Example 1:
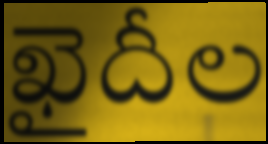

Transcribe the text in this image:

ఖైదీల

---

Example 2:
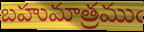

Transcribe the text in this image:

బహుమాత్రముఁ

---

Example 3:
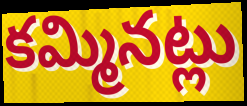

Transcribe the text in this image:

కమ్మినట్లు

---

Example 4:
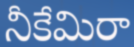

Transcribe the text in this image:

నీకేమిరా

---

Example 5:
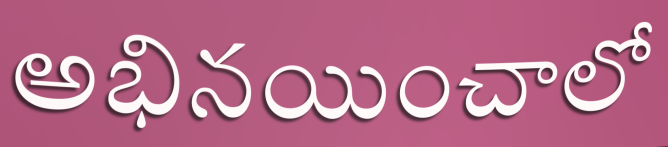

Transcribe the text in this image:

అభినయించాలో